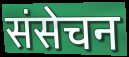
संसेचन